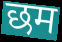
छम